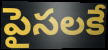
పైసలకే